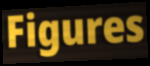
Figures